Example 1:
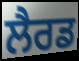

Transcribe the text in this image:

ਲੈਰਡ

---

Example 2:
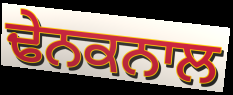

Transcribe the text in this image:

ਢੇਨਕਨਾਲ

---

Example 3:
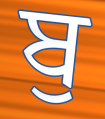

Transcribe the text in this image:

ਬੁ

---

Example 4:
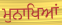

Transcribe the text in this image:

ਮੁਨਾਖਿਆਂ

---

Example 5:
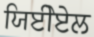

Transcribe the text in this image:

ਯਿਈੇਏਲ